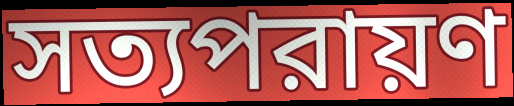
সত্যপরায়ণ